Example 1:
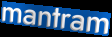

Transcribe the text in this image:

mantram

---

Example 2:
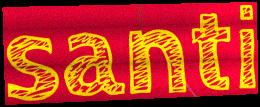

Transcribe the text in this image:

santi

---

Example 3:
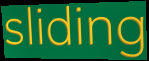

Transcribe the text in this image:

sliding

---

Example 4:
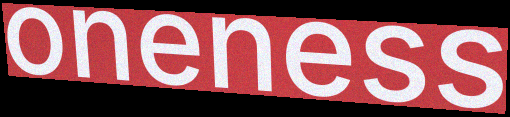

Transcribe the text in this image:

oneness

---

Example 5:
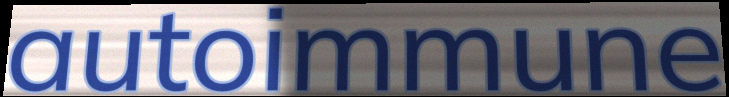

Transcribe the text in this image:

autoimmune